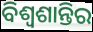
ବିଶ୍ୱଶାନ୍ତିର